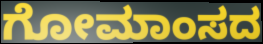
ಗೋಮಾಂಸದ